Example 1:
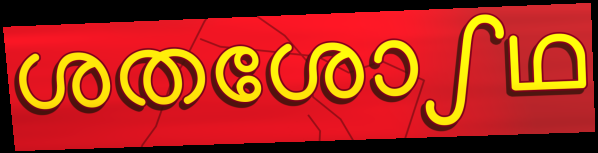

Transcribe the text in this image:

ശതശോഽഥ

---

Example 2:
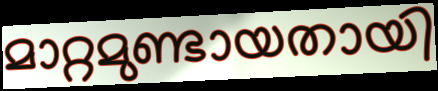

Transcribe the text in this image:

മാറ്റമുണ്ടായതായി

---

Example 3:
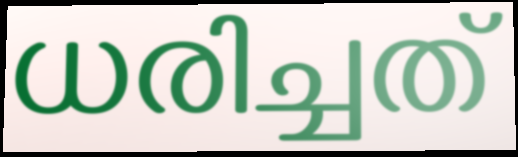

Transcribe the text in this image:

ധരിച്ചത്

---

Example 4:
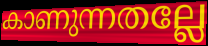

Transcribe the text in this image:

കാണുന്നതല്ലേ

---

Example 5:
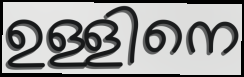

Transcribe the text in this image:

ഉള്ളിനെ